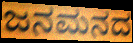
ಜನಮನದ